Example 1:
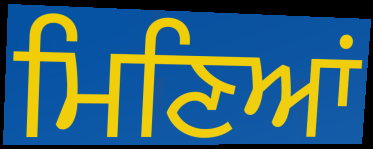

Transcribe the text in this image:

ਮਿਣਿਆਂ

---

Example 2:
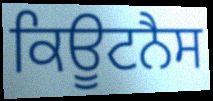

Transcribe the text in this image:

ਕਿਊਟਨੈਸ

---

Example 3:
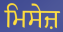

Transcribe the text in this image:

ਮਿਸੇਜ਼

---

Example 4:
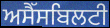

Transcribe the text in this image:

ਅਸੈੱਸਬਿਲਟੀ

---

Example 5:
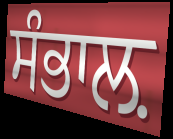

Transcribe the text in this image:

ਸੰਭਾਲ਼